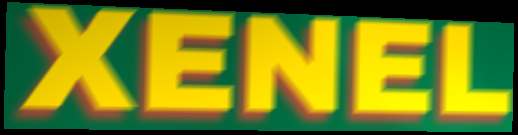
XENEL